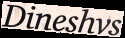
Dineshvs